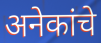
अनेकांचे